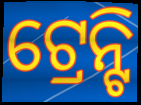
ଟ୍ରେନ୍ଟି